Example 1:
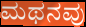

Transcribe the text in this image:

ಮಥನವು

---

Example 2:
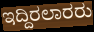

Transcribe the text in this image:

ಇದ್ದಿರಲಾರರು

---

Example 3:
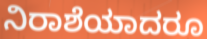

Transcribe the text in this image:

ನಿರಾಶೆಯಾದರೂ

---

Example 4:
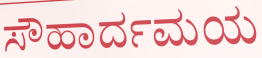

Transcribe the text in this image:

ಸೌಹಾರ್ದಮಯ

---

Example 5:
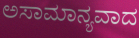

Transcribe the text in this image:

ಅಸಾಮಾನ್ಯವಾದ